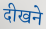
दीखने